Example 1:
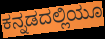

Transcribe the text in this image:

ಕನ್ನಡದಲ್ಲಿಯೂ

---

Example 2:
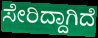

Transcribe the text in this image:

ಸೇರಿದ್ದಾಗಿದೆ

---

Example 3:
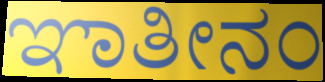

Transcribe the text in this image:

ಞಾತೀನಂ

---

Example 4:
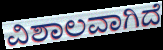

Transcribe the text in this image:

ವಿಶಾಲವಾಗಿದೆ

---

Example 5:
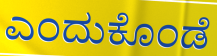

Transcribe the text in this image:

ಎಂದುಕೊಂಡೆ